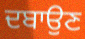
ਦਬਾਉਣ